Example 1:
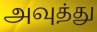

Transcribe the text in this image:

அவுத்து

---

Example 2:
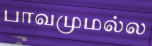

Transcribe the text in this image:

பாவமுமல்ல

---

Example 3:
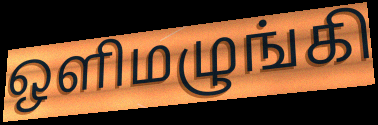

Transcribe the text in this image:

ஒளிமழுங்கி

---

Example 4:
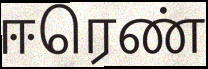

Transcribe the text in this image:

ஈரெண்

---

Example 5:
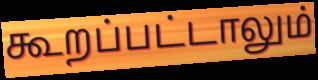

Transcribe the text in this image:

கூறப்பட்டாலும்